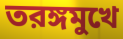
তরঙ্গমুখে